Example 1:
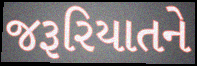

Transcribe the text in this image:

જરૂરિયાતને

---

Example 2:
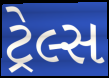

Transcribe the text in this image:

ટ્રેલ્સ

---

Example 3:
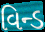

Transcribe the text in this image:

વિન્ડ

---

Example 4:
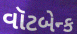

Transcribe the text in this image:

વૉટબેન્ક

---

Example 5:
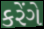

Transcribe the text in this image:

કરેંગે